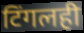
टिंगलही